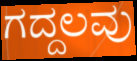
ಗದ್ದಲವು